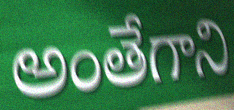
అంతేగాని